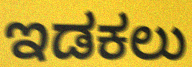
ಇಡಕಲು